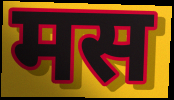
मस